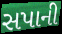
સપાની